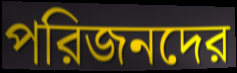
পরিজনদের